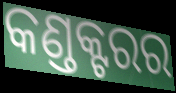
କଣ୍ଡକ୍ଟରର